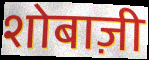
शोबाज़ी